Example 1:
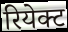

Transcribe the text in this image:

रियेक्ट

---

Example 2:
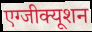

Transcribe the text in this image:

एग्जीक्यूशन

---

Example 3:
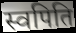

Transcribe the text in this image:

स्वपिति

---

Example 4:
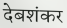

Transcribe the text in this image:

देबशंकर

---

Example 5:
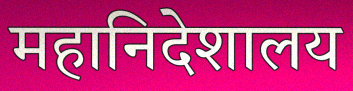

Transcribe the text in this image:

महानिदेशालय